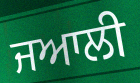
ਜਆਲੀ